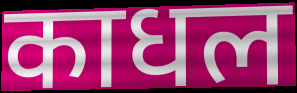
काधल